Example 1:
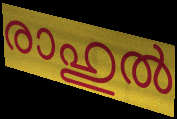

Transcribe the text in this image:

രാഹുൽ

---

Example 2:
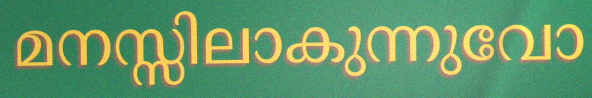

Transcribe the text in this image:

മനസ്സിലാകുന്നുവോ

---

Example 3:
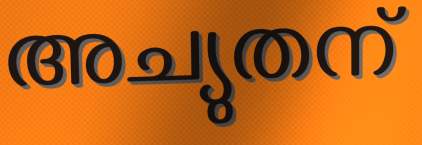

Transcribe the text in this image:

അച്യുതന്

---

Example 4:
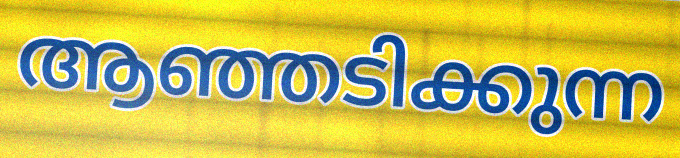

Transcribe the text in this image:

ആഞ്ഞടിക്കുന്ന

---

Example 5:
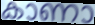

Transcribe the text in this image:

കാണാ